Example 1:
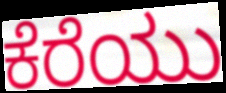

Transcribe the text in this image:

ಕೆರೆಯು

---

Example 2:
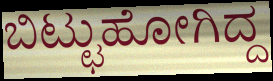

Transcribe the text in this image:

ಬಿಟ್ಟುಹೋಗಿದ್ದ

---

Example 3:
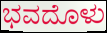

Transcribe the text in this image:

ಭವದೊಳು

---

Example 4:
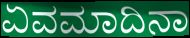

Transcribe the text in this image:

ಏವಮಾದಿನಾ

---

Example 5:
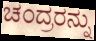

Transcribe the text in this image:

ಚಂದ್ರರನ್ನು